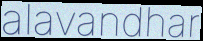
alavandhar